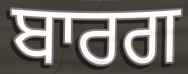
ਬਾਰਗ